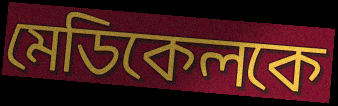
মেডিকেলকে